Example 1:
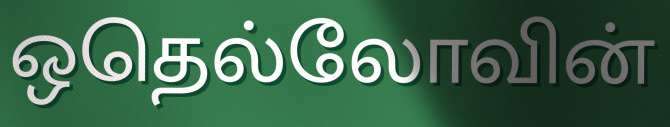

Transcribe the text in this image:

ஒதெல்லோவின்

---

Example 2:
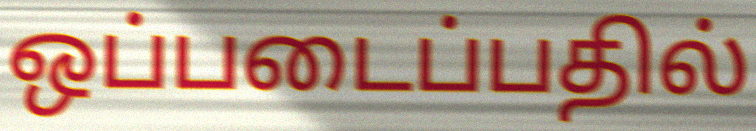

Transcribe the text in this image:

ஒப்படைப்பதில்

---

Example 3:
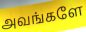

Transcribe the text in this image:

அவங்களே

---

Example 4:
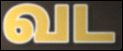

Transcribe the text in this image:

வட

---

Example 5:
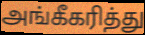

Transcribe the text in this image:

அங்கீகரித்து